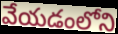
వేయడంలోని